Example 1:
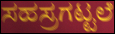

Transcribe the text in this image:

ಸಹಸ್ರಗಟ್ಟಲೆ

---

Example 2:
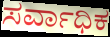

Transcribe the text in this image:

ಸರ್ವಾಧಿಕ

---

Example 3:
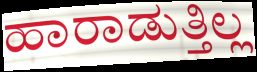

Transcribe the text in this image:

ಹಾರಾಡುತ್ತಿಲ್ಲ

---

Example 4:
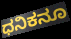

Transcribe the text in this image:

ಧನಿಕನೂ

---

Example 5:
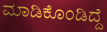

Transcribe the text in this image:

ಮಾಡಿಕೊಂಡಿದ್ದೆ